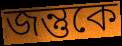
জন্তুকে